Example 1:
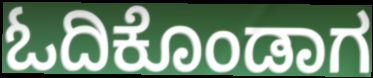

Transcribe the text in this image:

ಓದಿಕೊಂಡಾಗ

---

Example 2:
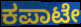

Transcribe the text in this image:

ಕಪಾಟೇ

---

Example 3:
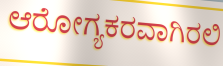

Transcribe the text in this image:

ಆರೋಗ್ಯಕರವಾಗಿರಲಿ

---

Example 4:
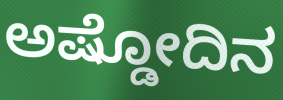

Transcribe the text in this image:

ಅಷ್ಡೋದಿನ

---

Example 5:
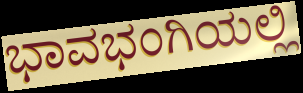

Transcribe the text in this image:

ಭಾವಭಂಗಿಯಲ್ಲಿ